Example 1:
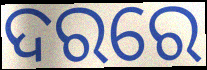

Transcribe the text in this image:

ଦରରେ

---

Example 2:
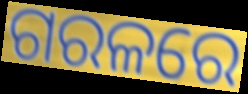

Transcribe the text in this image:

ଗରଳରେ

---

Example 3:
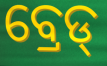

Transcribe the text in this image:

ବ୍ରେଡ୍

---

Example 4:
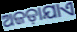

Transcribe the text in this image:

ଅଜଡ଼ାଯାଏ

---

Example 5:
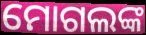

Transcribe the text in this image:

ମୋଗଲଙ୍କ